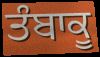
ਤੰਬਾਕੂ